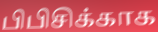
பிபிசிக்காக